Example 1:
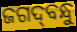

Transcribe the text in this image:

ଜଗଦ୍‌ବନ୍ଧୁ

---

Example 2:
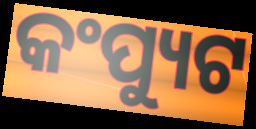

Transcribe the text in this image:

କଂପ୍ୟୁଟ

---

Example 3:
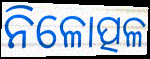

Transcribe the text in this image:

ନିଳୋତ୍ପଳ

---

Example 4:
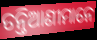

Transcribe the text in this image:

ତନ୍ତିଆଣୀମାନେ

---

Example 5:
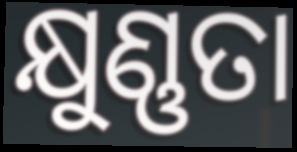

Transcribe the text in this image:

କ୍ଷୁଣ୍ଣତା